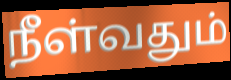
நீள்வதும்